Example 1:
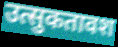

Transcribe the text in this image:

उत्सुकतावश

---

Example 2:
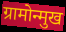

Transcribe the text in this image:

ग्रामोन्मुख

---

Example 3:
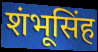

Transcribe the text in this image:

शंभूसिंह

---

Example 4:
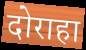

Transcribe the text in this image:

दोराहा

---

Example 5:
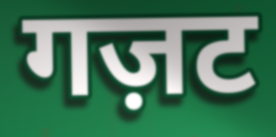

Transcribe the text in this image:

गज़ट